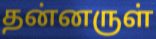
தன்னருள்